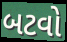
બટવો